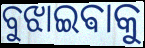
ବୁଝାଇଵାକୁ